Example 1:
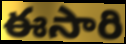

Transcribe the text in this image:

ఈసారి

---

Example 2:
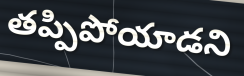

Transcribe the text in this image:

తప్పిపోయాడని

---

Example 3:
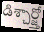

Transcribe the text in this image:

డిశ్చార్జ్తో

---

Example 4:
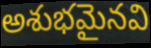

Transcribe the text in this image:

అశుభమైనవి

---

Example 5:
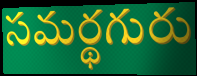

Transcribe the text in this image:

సమర్థగురు